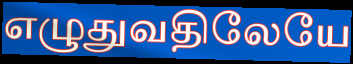
எழுதுவதிலேயே